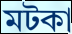
মটকা